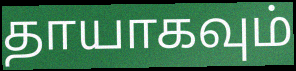
தாயாகவும்